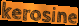
kerosine